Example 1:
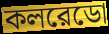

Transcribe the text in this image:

কলরেডো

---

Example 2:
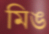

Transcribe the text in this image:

মিঙ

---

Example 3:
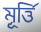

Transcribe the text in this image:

মূর্ত্তি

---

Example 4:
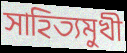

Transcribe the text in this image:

সাহিত্যমুখী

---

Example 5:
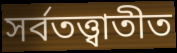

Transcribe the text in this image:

সর্বতত্ত্বাতীত